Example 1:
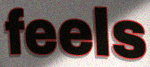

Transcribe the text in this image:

feels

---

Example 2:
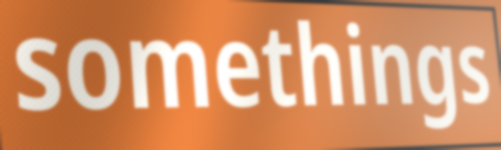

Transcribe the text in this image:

somethings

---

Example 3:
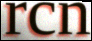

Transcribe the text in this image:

rcn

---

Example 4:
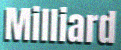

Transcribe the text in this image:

Milliard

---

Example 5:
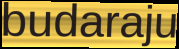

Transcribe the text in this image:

budaraju